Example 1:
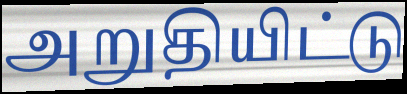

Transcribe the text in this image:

அறுதியிட்டு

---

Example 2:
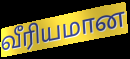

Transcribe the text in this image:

வீரியமான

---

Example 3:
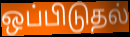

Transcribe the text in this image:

ஒப்பிடுதல்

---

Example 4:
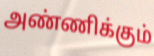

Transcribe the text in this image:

அண்ணிக்கும்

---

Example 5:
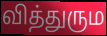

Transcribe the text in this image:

வித்துரும